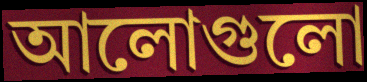
আলোগুলো